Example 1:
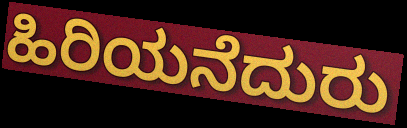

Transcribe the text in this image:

ಹಿರಿಯನೆದುರು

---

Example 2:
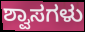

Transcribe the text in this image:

ಶ್ವಾಸಗಳು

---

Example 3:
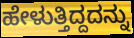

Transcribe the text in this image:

ಹೇಳುತ್ತಿದ್ದದನ್ನು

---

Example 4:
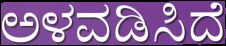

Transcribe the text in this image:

ಅಳವಡಿಸಿದೆ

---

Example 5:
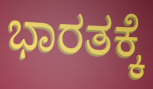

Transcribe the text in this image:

ಭಾರತಕ್ಕೆ